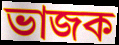
ভাজক